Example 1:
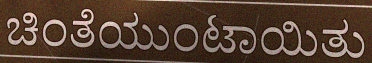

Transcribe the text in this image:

ಚಿಂತೆಯುಂಟಾಯಿತು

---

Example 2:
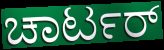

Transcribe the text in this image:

ಚಾರ್ಟರ್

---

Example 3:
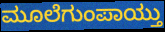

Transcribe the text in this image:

ಮೂಲೆಗುಂಪಾಯ್ತು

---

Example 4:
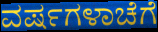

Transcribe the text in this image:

ವರ್ಷಗಳಾಚೆಗೆ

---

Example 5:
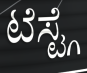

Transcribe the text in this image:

ಟೆಸ್ಟ್ಗೆ